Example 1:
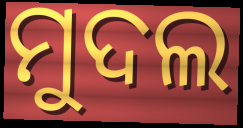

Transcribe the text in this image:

ମୁଦଲ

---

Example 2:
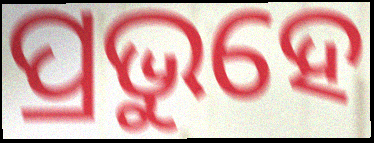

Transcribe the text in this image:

ପ୍ରଭୁହେ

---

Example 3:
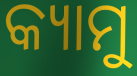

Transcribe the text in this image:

କ୍ୟାମୁ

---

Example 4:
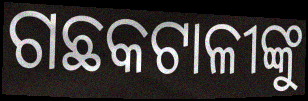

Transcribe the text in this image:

ଗଛକଟାଳୀଙ୍କୁ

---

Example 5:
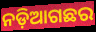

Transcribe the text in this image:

ନଡ଼ିଆଗଛର